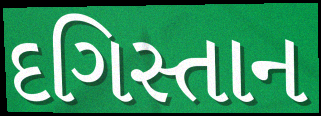
દગિસ્તાન